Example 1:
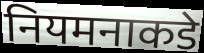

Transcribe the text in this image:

नियमनाकडे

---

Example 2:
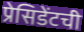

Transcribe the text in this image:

प्रेसिडेंटची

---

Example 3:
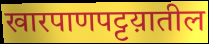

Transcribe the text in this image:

खारपाणपट्टय़ातील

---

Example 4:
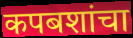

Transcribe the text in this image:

कपबशांचा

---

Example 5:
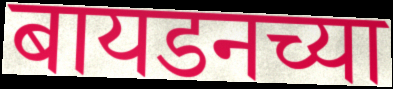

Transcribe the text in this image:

बायडनच्या